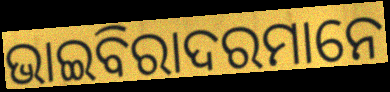
ଭାଇବିରାଦରମାନେ